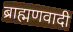
ब्राह्मणवादी